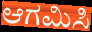
ಆಗಮಿಸಿ